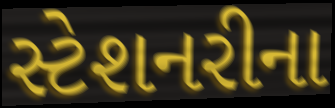
સ્ટેશનરીના